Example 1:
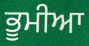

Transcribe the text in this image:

ਭੂਮੀਆ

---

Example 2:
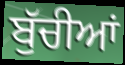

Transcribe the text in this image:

ਬੁੱਚੀਆਂ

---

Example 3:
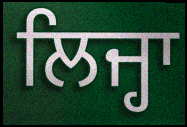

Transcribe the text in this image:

ਲਿਜ੍ਹਾ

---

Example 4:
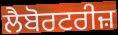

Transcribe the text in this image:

ਲੈਬੋਰਟਰੀਜ਼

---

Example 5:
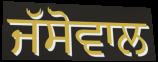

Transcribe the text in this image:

ਜੱਸੋਵਾਲ